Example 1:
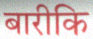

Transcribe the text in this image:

बारीकि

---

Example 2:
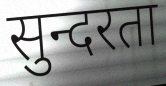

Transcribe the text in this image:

सुन्दरता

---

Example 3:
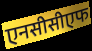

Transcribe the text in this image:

एनसीसीएफ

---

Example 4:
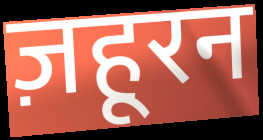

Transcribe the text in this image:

ज़हूरन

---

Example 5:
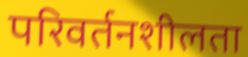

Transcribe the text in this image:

परिवर्तनशीलता